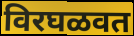
विरघळवत